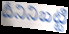
దీనినిబట్టి